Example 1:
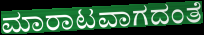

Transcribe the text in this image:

ಮಾರಾಟವಾಗದಂತೆ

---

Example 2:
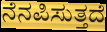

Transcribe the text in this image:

ನೆನಪಿಸುತ್ತದೆ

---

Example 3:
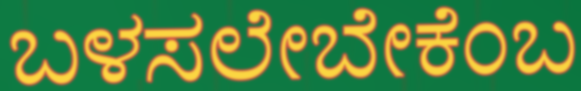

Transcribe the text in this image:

ಬಳಸಲೇಬೇಕೆಂಬ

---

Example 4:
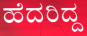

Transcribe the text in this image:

ಹೆದರಿದ್ದ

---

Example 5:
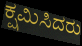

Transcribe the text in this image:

ಕ್ಷಮಿಸಿದರು